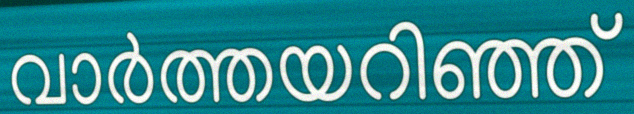
വാർത്തയറിഞ്ഞ്